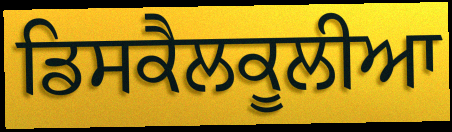
ਡਿਸਕੈਲਕੂਲੀਆ